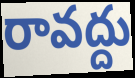
రావద్దు